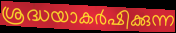
ശ്രദ്ധയാകർഷിക്കുന്ന